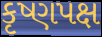
કૃષ્ણપક્ષ